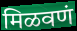
मिळवणं